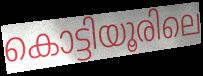
കൊട്ടിയൂരിലെ